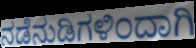
ನಡೆನುಡಿಗಳಿಂದಾಗಿ